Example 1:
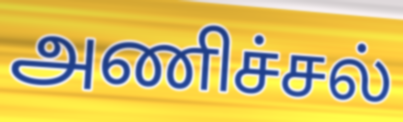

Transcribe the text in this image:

அணிச்சல்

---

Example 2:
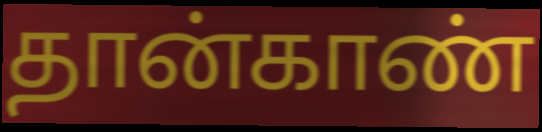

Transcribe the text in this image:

தான்காண்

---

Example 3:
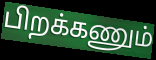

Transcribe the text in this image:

பிறக்கணும்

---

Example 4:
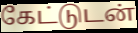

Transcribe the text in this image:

கேட்டுடன்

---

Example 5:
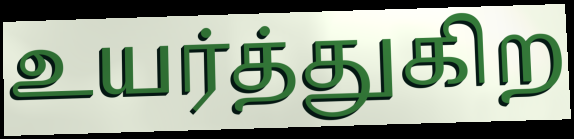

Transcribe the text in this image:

உயர்த்துகிற